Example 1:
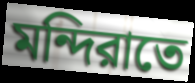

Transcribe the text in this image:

মন্দিরাতে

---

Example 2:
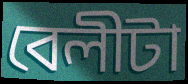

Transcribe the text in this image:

বেলীটা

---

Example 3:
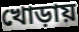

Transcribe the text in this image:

খোড়ায়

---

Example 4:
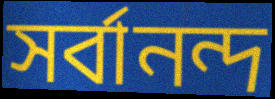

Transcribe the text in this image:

সর্বানন্দ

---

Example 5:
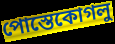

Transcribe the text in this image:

পোস্তেকোগলু